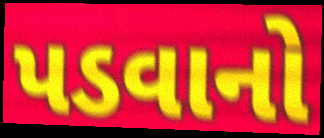
પડવાનો